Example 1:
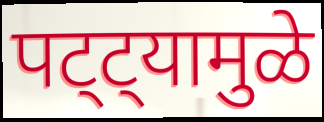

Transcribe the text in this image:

पट्ट्यामुळे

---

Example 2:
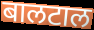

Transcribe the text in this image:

बालटाल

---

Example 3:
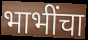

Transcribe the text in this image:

भाभींचा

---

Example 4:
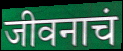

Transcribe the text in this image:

जीवनाचं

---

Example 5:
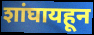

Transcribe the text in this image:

शांघायहून